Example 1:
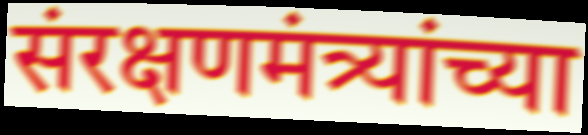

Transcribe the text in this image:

संरक्षणमंत्र्यांच्या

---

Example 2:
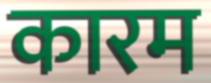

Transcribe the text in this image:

कारम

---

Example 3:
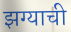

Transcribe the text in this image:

झग्याची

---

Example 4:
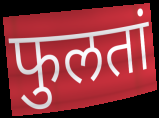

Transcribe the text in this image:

फुलतां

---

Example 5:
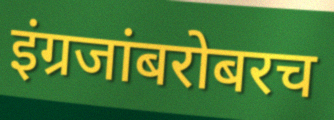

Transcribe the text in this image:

इंग्रजांबरोबरच